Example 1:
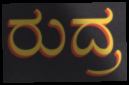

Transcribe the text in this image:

ರುದ್ರ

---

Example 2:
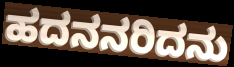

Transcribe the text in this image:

ಹದನನರಿದನು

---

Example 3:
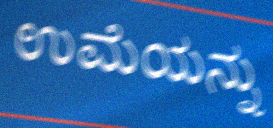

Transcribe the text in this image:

ಉಮೆಯನ್ನು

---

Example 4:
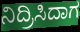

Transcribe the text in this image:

ನಿದ್ರಿಸಿದಾಗ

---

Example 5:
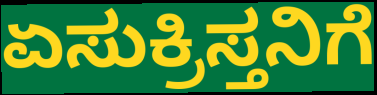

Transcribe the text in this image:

ಏಸುಕ್ರಿಸ್ತನಿಗೆ